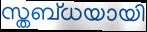
സ്തബ്ധയായി